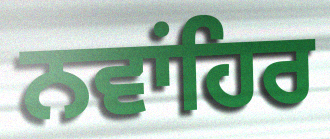
ਨਵਾਂਹਿਰ